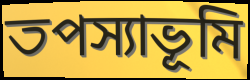
তপস্যাভূমি